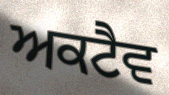
ਅਕਟੈਵ